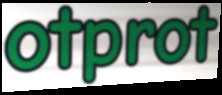
otprot